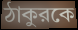
ঠাকুরকে